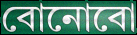
বোনোবো